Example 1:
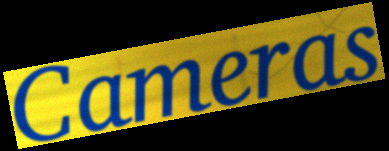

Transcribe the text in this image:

Cameras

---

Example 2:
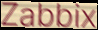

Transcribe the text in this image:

Zabbix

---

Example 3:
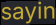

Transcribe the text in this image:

sayin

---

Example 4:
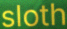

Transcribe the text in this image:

sloth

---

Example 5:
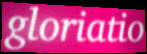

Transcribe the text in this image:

gloriatio